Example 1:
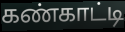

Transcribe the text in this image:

கண்காட்டி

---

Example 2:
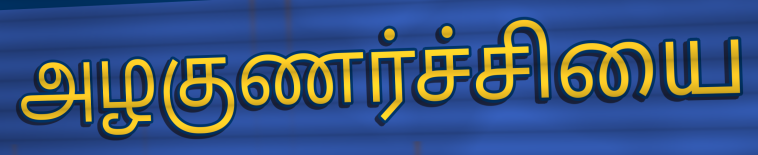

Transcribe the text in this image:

அழகுணர்ச்சியை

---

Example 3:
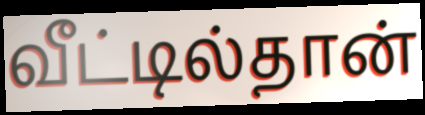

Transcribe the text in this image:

வீட்டில்தான்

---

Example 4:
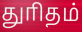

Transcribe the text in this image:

துரிதம்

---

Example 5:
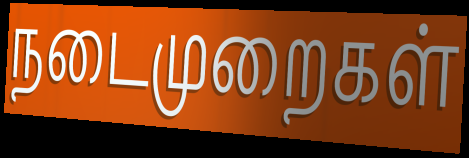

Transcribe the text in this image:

நடைமுறைகள்